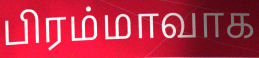
பிரம்மாவாக